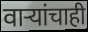
वाऱ्यांचाही